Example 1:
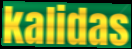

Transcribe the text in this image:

kalidas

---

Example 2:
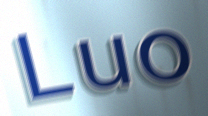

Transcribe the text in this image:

Luo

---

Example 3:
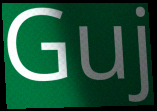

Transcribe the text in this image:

Guj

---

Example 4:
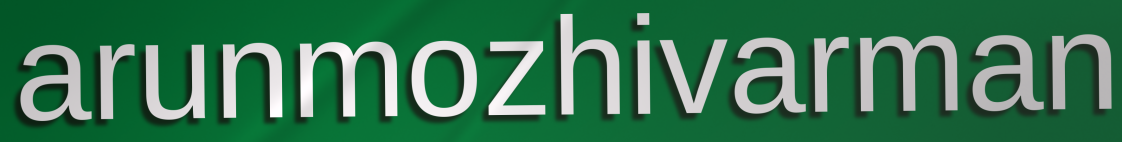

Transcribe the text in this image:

arunmozhivarman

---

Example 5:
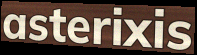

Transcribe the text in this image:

asterixis